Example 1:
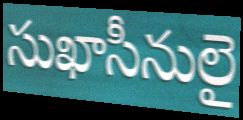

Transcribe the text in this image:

సుఖాసీనులై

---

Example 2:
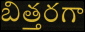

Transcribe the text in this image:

బిత్తరగా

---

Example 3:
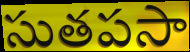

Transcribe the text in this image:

సుతపసా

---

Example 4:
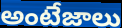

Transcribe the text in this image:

అంటేజాలు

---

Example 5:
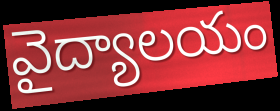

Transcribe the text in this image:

వైద్యాలయం